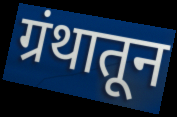
ग्रंथातून